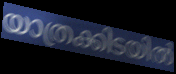
യാത്രക്കിടയിൽ